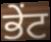
ਭੇਂਟ